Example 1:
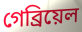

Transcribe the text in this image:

গেব্ৰিয়েল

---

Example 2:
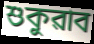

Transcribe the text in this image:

শুকুৱাব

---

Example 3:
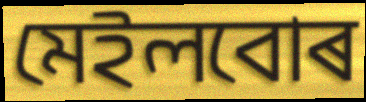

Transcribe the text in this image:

মেইলবোৰ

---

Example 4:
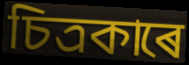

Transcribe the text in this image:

চিত্ৰকাৰে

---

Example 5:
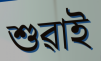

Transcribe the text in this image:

শুৱাই